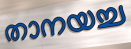
താനയച്ച